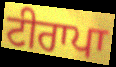
ਟੀਰਾਪਾ